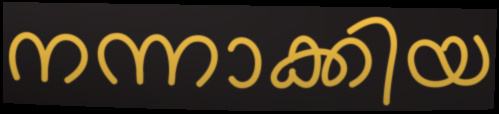
നന്നാക്കിയ